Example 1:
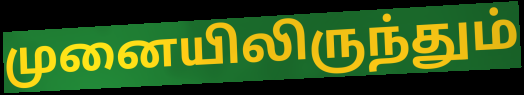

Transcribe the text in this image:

முனையிலிருந்தும்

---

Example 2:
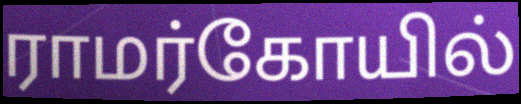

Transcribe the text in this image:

ராமர்கோயில்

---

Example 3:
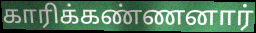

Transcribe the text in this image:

காரிக்கண்ணனார்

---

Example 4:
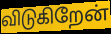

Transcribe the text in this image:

விடுகிறேன்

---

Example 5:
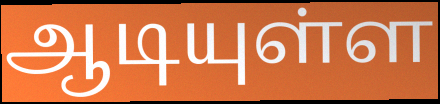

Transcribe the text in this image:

ஆடியுள்ள